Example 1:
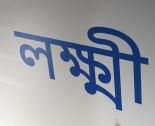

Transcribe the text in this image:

লক্ষ্মী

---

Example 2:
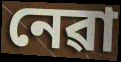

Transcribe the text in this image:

নেৱা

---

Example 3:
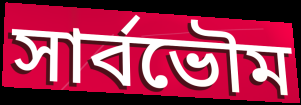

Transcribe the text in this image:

সাৰ্বভৌম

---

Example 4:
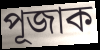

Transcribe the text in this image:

পূজাক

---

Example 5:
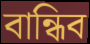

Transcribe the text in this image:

বান্ধিব